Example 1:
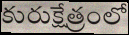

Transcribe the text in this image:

కురుక్షేత్రంలో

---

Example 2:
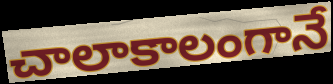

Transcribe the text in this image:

చాలాకాలంగానే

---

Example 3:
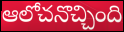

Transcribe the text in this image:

ఆలోచనొచ్చింది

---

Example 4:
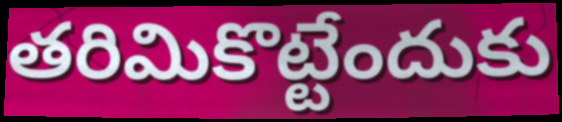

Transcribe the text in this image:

తరిమికొట్టేందుకు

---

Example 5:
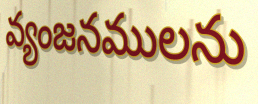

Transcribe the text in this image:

వ్యంజనములను